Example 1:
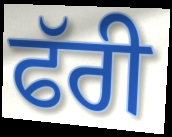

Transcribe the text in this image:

ਫੱਰੀ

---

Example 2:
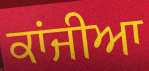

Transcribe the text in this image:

ਕਾਂਜੀਆ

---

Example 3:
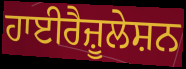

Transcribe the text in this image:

ਹਾਈਰੈਜ਼ੂਲੇਸ਼ਨ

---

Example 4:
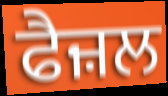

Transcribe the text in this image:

ਫੈਜ਼ਲ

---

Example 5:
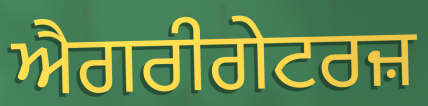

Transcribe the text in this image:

ਐਗਰੀਗੇਟਰਜ਼